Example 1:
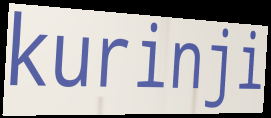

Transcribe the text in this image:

kurinji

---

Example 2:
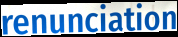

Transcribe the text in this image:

renunciation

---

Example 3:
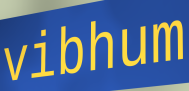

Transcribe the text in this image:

vibhum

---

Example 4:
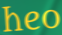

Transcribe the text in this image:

heo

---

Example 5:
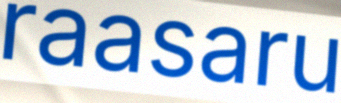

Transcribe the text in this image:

raasaru